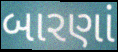
બારણાં